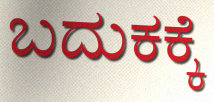
ಬದುಕಕ್ಕೆ